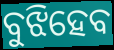
ବୁଝିହେବ